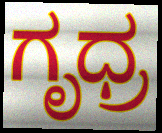
ಗೃಧ್ರ